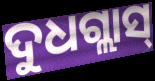
ଦୁଧଗ୍ଲାସ୍